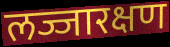
लज्जारक्षण